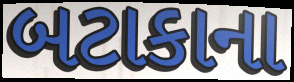
બટાકાના